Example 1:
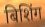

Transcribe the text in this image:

बिशिंग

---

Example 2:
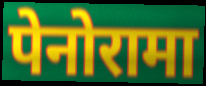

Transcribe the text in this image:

पेनोरामा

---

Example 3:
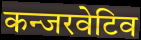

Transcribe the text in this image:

कन्जरवेटिव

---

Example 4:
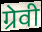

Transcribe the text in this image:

ग्रेवी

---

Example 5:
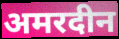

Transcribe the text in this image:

अमरदीन